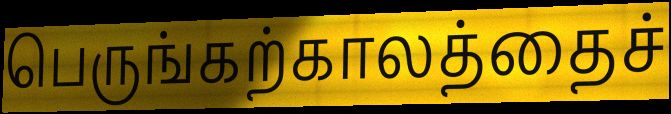
பெருங்கற்காலத்தைச்